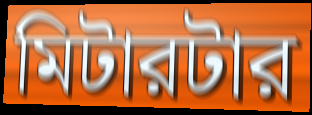
মিটারটার